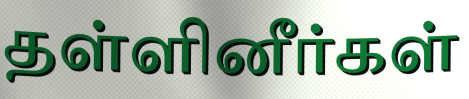
தள்ளினீர்கள்